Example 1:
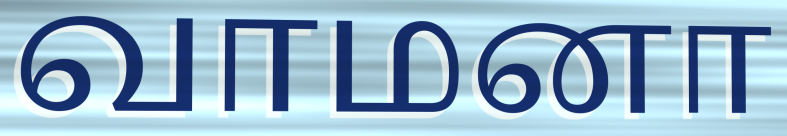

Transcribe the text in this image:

வாமனா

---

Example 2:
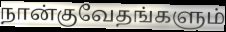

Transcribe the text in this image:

நான்குவேதங்களும்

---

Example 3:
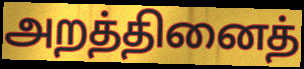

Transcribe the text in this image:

அறத்தினைத்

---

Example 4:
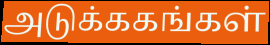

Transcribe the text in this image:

அடுக்ககங்கள்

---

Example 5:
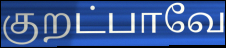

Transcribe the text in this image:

குறட்பாவே